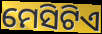
ମେସିଟିଏ